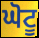
ਘੋਟੂ